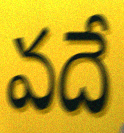
వదే